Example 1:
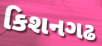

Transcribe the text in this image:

કિશનગઢ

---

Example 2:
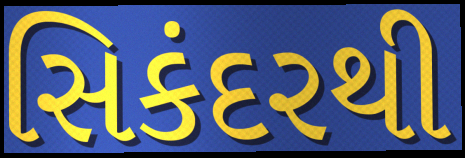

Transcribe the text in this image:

સિકંદરથી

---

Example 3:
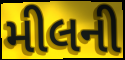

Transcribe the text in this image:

મીલની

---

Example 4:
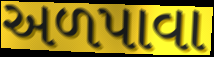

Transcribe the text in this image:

અળપાવા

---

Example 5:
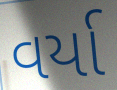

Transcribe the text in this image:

વર્યા